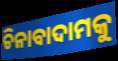
ଚିନାବାଦାମକୁ